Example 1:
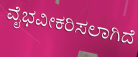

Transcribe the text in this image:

ವೈಭವೀಕರಿಸಲಾಗಿದೆ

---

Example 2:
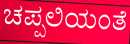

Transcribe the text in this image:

ಚಪ್ಪಲಿಯಂತೆ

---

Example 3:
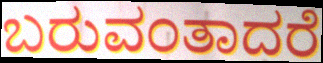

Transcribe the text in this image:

ಬರುವಂತಾದರೆ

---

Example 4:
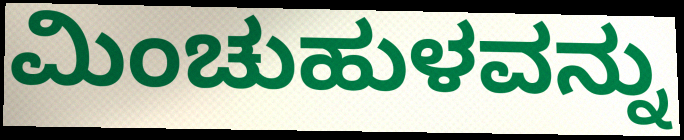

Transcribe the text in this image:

ಮಿಂಚುಹುಳವನ್ನು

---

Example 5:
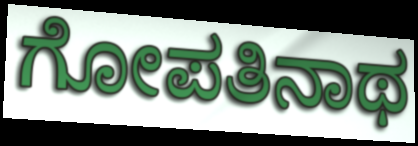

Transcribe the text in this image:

ಗೋಪತಿನಾಥ